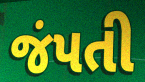
જંપતી